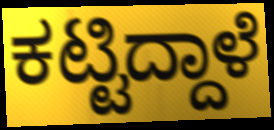
ಕಟ್ಟಿದ್ದಾಳೆ